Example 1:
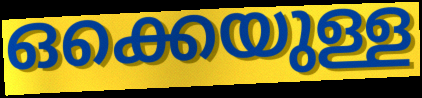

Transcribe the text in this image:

ഒക്കെയുള്ള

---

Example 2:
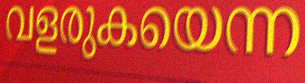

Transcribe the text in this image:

വളരുകയെന്ന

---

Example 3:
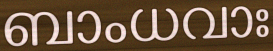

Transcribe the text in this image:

ബാംധവാഃ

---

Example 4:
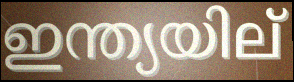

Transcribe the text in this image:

ഇന്ത്യയില്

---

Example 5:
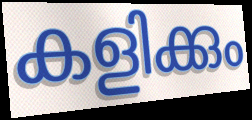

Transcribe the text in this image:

കളിക്കും